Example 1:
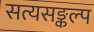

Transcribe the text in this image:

सत्यसङ्कल्प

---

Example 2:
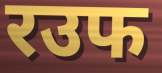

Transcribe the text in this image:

रउफ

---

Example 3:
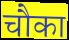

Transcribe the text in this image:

चौका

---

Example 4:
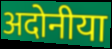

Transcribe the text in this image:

अदोनीया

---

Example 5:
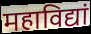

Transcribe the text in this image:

महाविद्यां